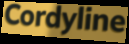
Cordyline